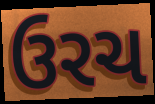
ઉરચ